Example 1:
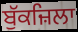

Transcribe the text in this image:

ਬੁੱਕਜ਼ਿਲਾ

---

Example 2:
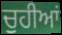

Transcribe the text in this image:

ਚੁਹੀਆਂ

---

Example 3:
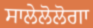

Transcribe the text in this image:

ਸਾਲੇਲੋਲੋਗਾ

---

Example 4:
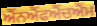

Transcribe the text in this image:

ਐੱਨਐੱਫਐੱਚਐੱਮ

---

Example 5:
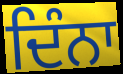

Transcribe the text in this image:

ਦਿੰਨਾ